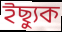
ইছ্যুক